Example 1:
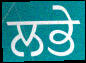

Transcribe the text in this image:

ਲਭੇ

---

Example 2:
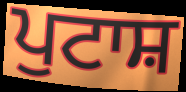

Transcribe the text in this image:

ਪੁਟਾਸ਼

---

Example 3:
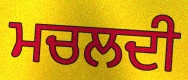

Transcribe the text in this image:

ਮਚਲਦੀ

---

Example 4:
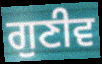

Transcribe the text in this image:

ਗੁਣੀਵ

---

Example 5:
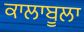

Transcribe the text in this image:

ਕਾਲਾਬੂਲਾ